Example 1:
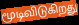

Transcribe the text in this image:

மூடிவிடுகிறது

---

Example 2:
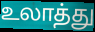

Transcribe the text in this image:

உலாத்து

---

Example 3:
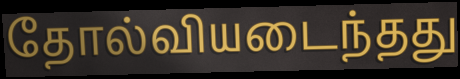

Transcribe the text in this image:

தோல்வியடைந்தது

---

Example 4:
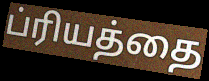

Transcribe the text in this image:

ப்ரியத்தை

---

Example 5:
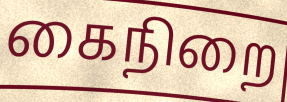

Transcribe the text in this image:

கைநிறை